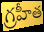
గ్రహీత